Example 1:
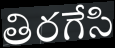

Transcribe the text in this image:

తిరగేసి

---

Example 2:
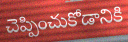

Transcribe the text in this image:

చెప్పించుకోడానికి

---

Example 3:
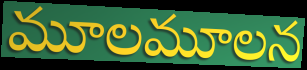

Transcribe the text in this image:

మూలమూలన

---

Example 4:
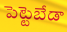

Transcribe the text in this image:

పెట్టెబేడా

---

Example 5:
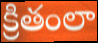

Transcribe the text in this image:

క్రితంలా